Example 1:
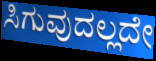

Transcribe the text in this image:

ಸಿಗುವುದಲ್ಲದೇ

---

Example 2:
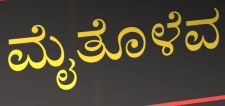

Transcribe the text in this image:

ಮೈತೊಳೆವ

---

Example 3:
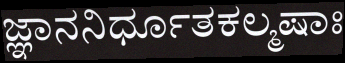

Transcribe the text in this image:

ಜ್ಞಾನನಿರ್ಧೂತಕಲ್ಮಷಾಃ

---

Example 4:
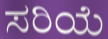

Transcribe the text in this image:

ಸರಿಯೆ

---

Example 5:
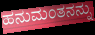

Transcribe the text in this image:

ಹನುಮಂತನನ್ನು